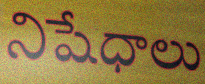
నిషేధాలు